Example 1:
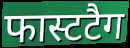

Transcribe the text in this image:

फास्टटैग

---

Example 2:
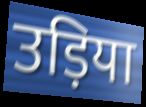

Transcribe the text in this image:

उड़िया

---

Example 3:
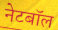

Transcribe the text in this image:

नेटबॉल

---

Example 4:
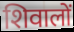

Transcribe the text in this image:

शिवालों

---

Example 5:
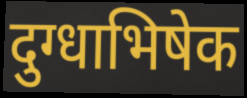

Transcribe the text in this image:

दुग्धाभिषेक